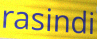
rasindi